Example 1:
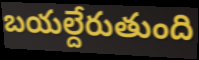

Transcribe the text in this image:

బయల్దేరుతుంది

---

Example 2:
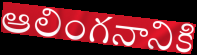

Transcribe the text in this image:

ఆలింగనానికి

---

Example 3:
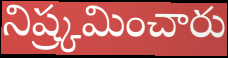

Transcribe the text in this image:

నిష్ర్కమించారు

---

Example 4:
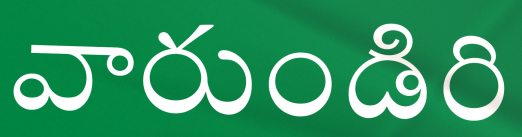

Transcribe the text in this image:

వారుండిరి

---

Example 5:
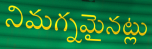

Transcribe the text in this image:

నిమగ్నమైనట్లు